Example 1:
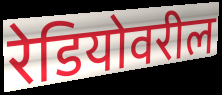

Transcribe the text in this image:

रेडियोवरील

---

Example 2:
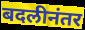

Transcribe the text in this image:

बदलीनंतर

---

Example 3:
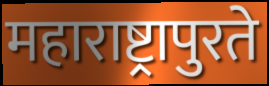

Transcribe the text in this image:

महाराष्ट्रापुरते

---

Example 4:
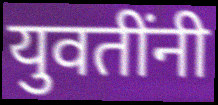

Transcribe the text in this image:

युवतींनी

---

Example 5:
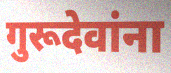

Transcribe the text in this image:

गुरूदेवांना